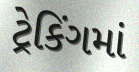
ટ્રેકિંગમાં